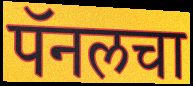
पॅनलचा